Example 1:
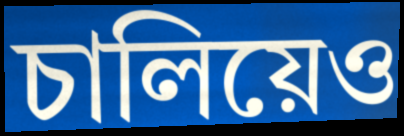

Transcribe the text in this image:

চালিয়েও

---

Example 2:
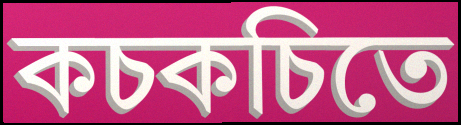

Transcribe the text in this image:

কচকচিতে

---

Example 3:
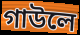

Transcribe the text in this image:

গাউলে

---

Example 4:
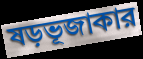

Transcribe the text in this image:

ষড়ভূজাকার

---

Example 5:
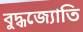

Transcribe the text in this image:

বুদ্ধজ্যোতি